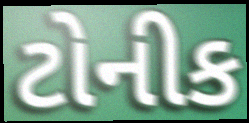
ટોનીક